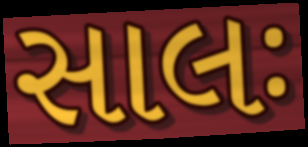
સાલઃ